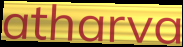
atharva